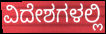
ವಿದೇಶಗಳಲ್ಲಿ